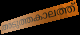
അടുത്തകാലത്ത്